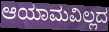
ಆಯಾಮವಿಲ್ಲದ